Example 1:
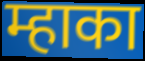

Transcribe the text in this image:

म्हाका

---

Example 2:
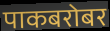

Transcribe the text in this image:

पाकबरोबर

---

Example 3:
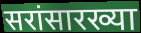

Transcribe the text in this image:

सरांसारख्या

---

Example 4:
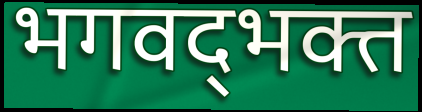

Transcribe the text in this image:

भगवद्भक्त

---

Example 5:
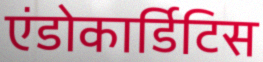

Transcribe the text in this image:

एंडोकार्डिटिस